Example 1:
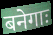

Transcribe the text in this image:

बनेगाः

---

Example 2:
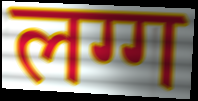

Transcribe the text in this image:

लग्ग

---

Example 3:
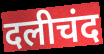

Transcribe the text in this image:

दलीचंद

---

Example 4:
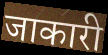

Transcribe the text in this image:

जाकारी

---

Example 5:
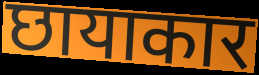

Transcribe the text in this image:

छायाकार